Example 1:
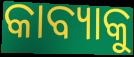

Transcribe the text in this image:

କାବ୍ୟାକୁ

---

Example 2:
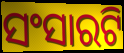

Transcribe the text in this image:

ସଂସାରଟି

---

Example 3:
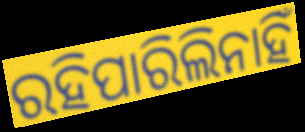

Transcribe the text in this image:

ରହିପାରିଲିନାହିଁ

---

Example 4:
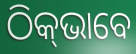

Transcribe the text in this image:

ଠିକ୍‍ଭାବେ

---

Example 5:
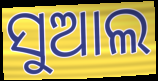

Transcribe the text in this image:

ସୁଆଲ